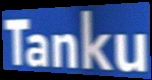
Tanku